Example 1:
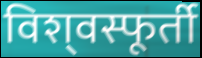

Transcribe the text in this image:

विश्वस्फूर्ती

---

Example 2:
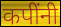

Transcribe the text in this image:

कपींनी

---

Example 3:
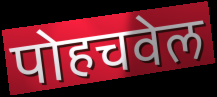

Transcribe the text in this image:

पोहचवेल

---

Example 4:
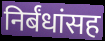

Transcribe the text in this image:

निर्बंधांसह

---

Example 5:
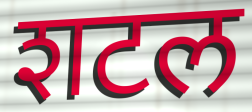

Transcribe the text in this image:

शटल